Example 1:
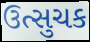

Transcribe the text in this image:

ઉત્સુચક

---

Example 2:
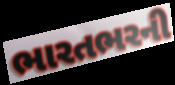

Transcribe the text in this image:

ભારતભરની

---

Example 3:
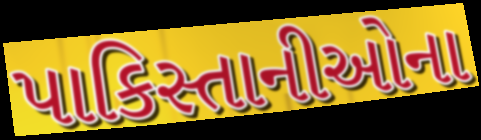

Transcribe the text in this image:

પાકિસ્તાનીઓના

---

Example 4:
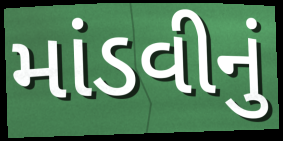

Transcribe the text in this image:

માંડવીનું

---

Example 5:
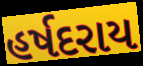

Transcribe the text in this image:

હર્ષદરાય